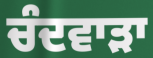
ਚੰਦਵਾੜਾ